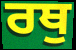
ਰਥੁ